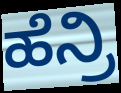
ಹೆನ್ರಿ